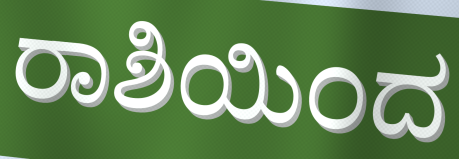
ರಾಶಿಯಿಂದ